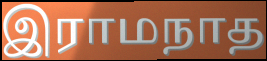
இராமநாத